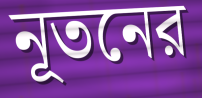
নূতনের